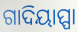
ଗାଦିୟାପ୍ପା